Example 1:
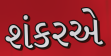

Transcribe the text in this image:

શંકરએ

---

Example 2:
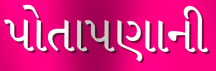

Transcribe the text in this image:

પોતાપણાની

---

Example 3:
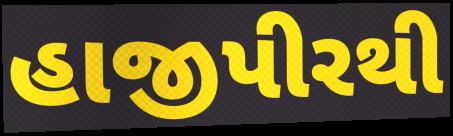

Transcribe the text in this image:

હાજીપીરથી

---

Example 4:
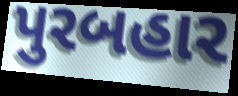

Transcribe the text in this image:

પુરબહાર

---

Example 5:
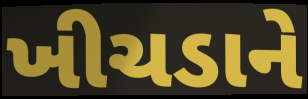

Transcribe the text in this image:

ખીચડાને